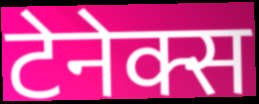
टेनेक्स